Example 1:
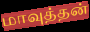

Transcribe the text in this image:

மாவுத்தன்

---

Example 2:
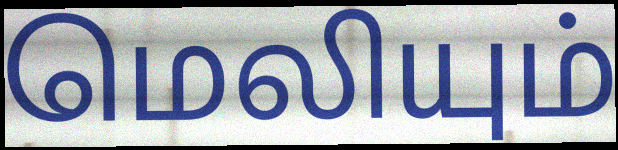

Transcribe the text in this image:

மெலியும்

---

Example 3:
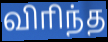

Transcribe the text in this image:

விரிந்த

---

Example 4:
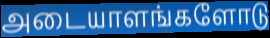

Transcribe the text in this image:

அடையாளங்களோடு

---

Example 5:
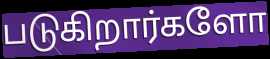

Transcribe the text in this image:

படுகிறார்களோ